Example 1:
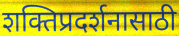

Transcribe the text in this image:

शक्तिप्रदर्शनासाठी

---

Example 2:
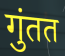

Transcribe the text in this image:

गुंतत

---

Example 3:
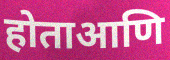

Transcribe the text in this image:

होताआणि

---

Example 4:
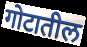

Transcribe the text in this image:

गोटातील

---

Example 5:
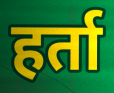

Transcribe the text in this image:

हर्ता